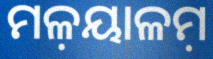
ମଳ଼ୟାଳମ଼